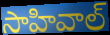
సాహివాల్